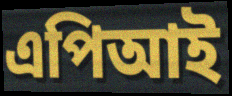
এপিআই